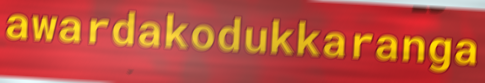
awardakodukkaranga